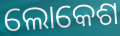
ଲୋକେଶ